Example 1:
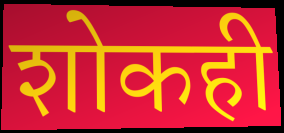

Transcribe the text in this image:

शोकही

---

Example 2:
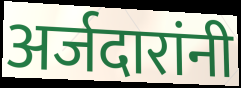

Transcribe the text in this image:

अर्जदारांनी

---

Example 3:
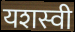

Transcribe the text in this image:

यशस्‍वी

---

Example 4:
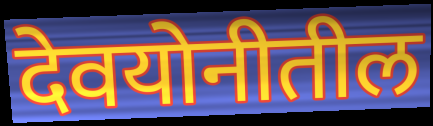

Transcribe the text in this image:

देवयोनीतील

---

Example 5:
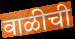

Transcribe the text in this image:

वाळीची